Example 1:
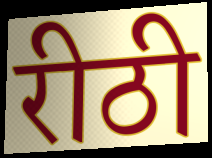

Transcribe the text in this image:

रीठी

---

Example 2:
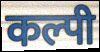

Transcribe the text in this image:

कल्पी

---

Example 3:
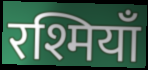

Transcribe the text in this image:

रश्मियाँ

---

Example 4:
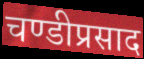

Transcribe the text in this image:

चण्डीप्रसाद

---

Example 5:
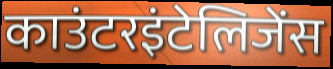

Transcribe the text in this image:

काउंटरइंटेलिजेंस